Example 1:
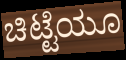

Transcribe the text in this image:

ಚಿಟ್ಟೆಯೂ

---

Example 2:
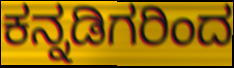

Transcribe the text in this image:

ಕನ್ನಡಿಗರಿಂದ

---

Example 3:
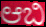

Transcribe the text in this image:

ಆಬಿ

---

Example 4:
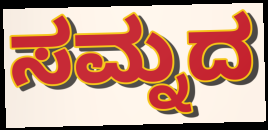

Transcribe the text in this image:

ಸಮ್ನದ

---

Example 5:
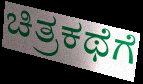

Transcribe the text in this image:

ಚಿತ್ರಕಥೆಗೆ